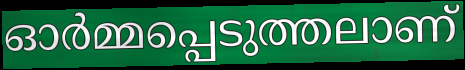
ഓർമ്മപ്പെടുത്തലാണ്